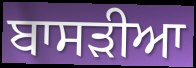
ਬਾਸੜੀਆ